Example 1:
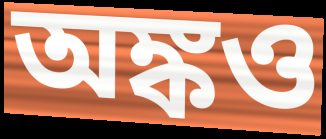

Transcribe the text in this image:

অঙ্কও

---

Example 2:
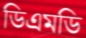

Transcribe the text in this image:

ডিএমডি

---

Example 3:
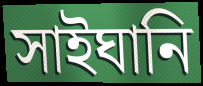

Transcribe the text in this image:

সাইঘানি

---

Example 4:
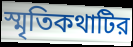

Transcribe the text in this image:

স্মৃতিকথাটির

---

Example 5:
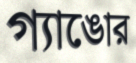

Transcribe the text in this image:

গ্যাঙোর